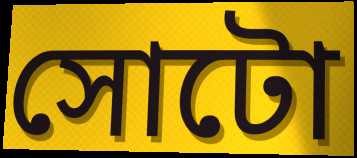
সোটো